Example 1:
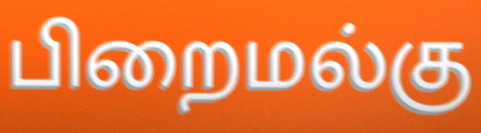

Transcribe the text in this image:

பிறைமல்கு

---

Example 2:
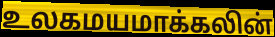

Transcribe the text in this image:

உலகமயமாக்கலின்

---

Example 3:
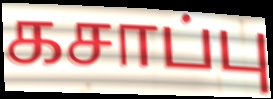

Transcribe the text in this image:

கசாப்பு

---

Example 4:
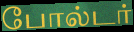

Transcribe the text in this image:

போல்டர்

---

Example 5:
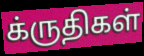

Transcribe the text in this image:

க்ருதிகள்